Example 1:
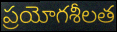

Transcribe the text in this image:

ప్రయోగశీలత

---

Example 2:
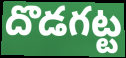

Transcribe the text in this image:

దొడగట్ట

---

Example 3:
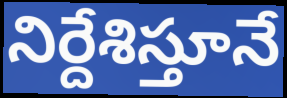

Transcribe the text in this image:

నిర్దేశిస్తూనే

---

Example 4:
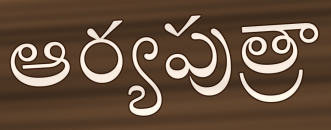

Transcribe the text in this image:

ఆర్యపుత్రా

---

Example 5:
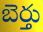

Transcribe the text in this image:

బెర్తు